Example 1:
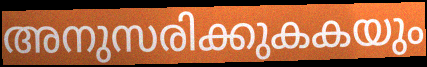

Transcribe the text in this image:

അനുസരിക്കുകകയും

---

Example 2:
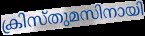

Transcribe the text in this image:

ക്രിസ്തുമസിനായി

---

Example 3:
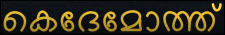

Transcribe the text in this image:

കെദേമോത്ത്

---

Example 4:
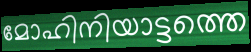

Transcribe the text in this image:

മോഹിനിയാട്ടത്തെ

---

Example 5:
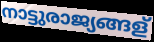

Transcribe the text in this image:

നാട്ടുരാജ്യങ്ങള്